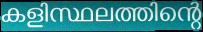
കളിസ്ഥലത്തിന്റെ